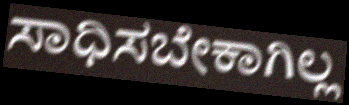
ಸಾಧಿಸಬೇಕಾಗಿಲ್ಲ